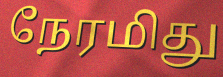
நேரமிது